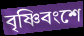
বৃষ্ণিবংশে